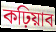
কঢ়িয়াব